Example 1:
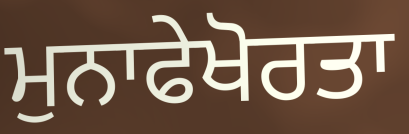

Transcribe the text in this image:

ਮੁਨਾਫੇਖੋਰਤਾ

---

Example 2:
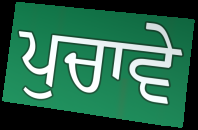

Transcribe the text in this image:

ਪੁਚਾਵੇ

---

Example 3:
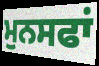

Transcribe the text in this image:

ਮੁਨਸਫਾਂ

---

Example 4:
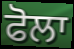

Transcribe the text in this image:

ਫੋਲਾ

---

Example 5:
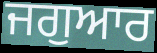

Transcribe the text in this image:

ਜਗੁਆਰ